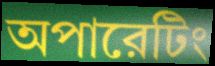
অপারেটিং